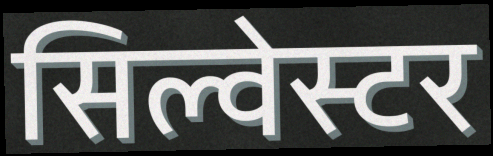
सिल्वेस्टर